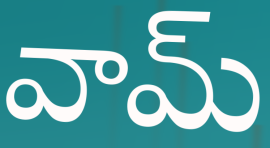
వామ్